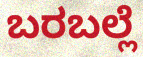
ಬರಬಲ್ಲೆ